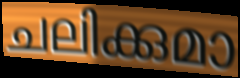
ചലിക്കുമാ